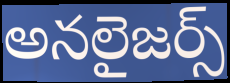
అనలైజర్స్